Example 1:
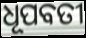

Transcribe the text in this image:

ଧୂପବତୀ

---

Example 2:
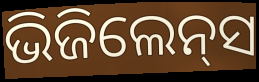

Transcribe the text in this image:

ଭିଜିଲେନ୍‌ସ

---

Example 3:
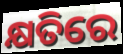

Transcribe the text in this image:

କ୍ଷତିରେ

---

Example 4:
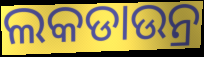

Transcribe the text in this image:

ଲକଡାଉନ୍ର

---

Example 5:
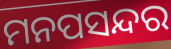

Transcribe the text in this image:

ମନପସନ୍ଦର